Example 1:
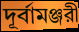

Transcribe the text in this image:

দূর্বামঞ্জরী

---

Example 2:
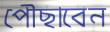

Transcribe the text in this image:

পৌছাবেন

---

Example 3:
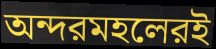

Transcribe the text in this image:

অন্দরমহলেরই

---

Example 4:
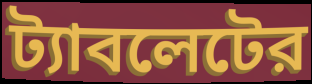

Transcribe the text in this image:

ট্যাবলেটের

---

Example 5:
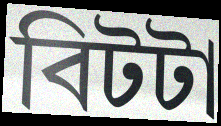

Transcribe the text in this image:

বিটটা